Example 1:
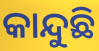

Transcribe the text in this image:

କାନ୍ଦୁଛି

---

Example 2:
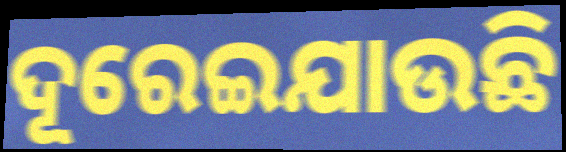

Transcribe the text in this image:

ଦୂରେଇଯାଉଛି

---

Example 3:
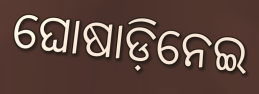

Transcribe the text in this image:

ଘୋଷାଡ଼ିନେଇ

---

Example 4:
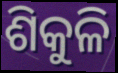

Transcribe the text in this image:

ଶିକୁଳି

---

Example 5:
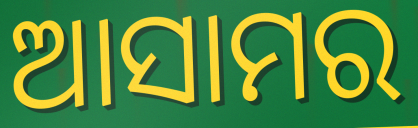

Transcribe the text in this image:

ଆସାମର